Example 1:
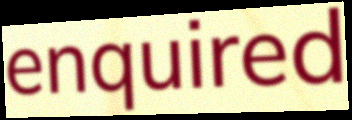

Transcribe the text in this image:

enquired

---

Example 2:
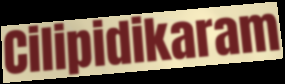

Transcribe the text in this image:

Cilipidikaram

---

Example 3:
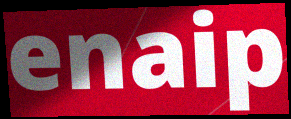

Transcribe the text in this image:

enaip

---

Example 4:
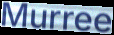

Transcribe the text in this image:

Murree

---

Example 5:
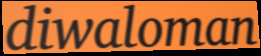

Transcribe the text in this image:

diwaloman